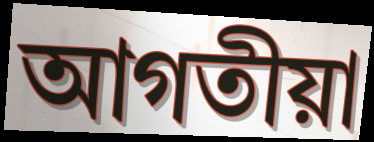
আগতীয়া